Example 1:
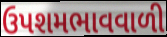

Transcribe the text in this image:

ઉપશમભાવવાળી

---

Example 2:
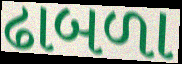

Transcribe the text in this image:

ઢાબળા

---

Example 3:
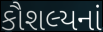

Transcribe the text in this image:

કૌશલ્યનાં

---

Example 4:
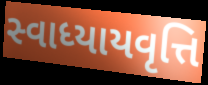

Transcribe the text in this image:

સ્વાધ્યાયવૃત્તિ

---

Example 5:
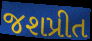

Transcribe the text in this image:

જશપ્રીત